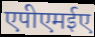
एपीएमईए